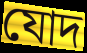
যোদ